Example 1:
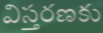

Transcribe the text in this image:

విస్తరణకు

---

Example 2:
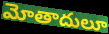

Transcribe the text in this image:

మోతాదులూ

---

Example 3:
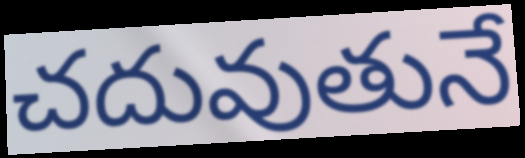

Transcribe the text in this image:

చదువుతునే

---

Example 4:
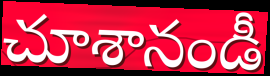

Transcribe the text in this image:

చూశానండీ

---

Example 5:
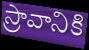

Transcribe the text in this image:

స్రావానికి